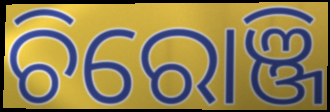
ଚିରୋଞ୍ଜି